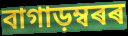
বাগাড়ম্বৰৰ